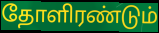
தோளிரண்டும்